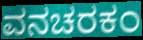
ವನಚರಕಂ